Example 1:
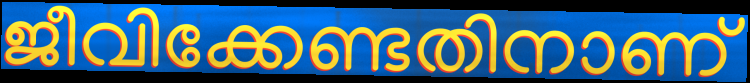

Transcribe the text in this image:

ജീവിക്കേണ്ടതിനാണ്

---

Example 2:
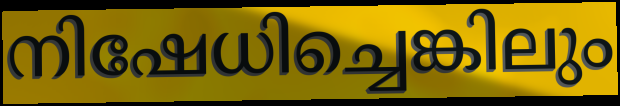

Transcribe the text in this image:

നിഷേധിച്ചെങ്കിലും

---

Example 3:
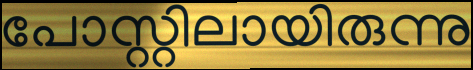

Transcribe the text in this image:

പോസ്റ്റിലായിരുന്നു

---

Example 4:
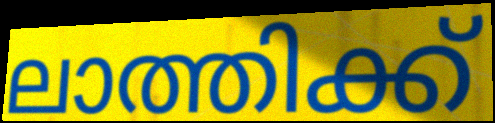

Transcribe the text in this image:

ലാത്തിക്ക്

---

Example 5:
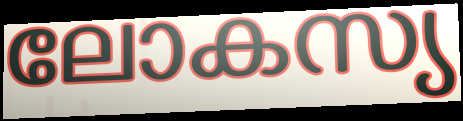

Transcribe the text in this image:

ലോകസ്യ